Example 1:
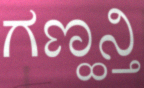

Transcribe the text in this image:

ಗಣ್ಹನ್ತಿ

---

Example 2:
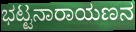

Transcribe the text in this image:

ಭಟ್ಟನಾರಾಯಣನ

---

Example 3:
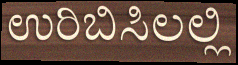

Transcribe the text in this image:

ಉರಿಬಿಸಿಲಲ್ಲಿ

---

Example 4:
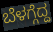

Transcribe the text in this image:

ಬೆಳಗ್ಗೆದ್ದ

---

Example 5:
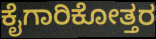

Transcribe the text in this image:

ಕೈಗಾರಿಕೋತ್ತರ